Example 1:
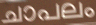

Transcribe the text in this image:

ചാപലം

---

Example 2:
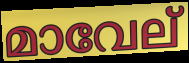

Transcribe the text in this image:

മാവേല്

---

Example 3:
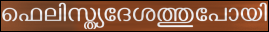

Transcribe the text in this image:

ഫെലിസ്ത്യദേശത്തുപോയി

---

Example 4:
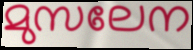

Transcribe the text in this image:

മുസലേന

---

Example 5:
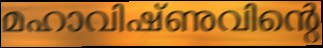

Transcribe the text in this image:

മഹാവിഷ്‌ണുവിന്റെ